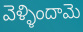
వెళ్ళిందామె